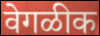
वेगळीक